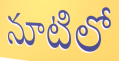
నూటిలో